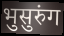
भुसुरुंग